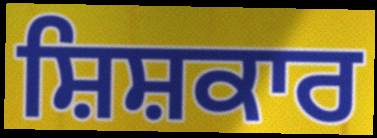
ਸ਼ਿਸ਼ਕਾਰ